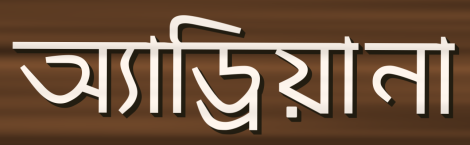
অ্যাড্রিয়ানা